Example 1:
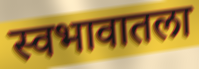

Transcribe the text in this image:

स्वभावातला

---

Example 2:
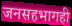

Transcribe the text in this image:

जनसहभागही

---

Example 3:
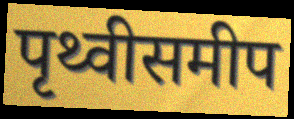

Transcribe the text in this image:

पृथ्वीसमीप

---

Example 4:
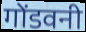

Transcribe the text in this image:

गोंडवनी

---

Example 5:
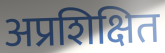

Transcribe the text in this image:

अप्रशिक्षित